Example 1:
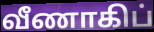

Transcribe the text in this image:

வீணாகிப்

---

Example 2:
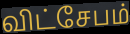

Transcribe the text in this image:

விட்சேபம்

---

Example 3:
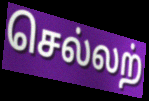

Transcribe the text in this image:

செல்லற்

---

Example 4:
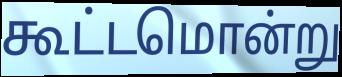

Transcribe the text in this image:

கூட்டமொன்று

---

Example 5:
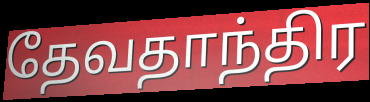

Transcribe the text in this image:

தேவதாந்திர